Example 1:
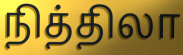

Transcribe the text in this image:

நித்திலா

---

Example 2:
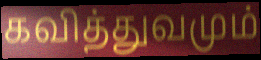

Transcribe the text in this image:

கவித்துவமும்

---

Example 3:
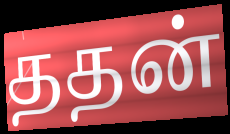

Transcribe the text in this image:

ததன்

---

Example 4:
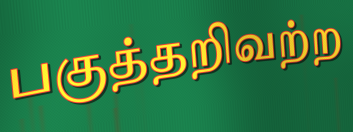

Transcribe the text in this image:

பகுத்தறிவற்ற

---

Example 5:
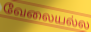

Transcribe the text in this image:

வேலையல்ல